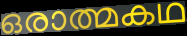
ഒരാത്മകഥ